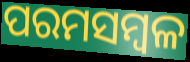
ପରମସମ୍ବଳ